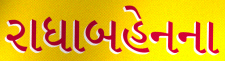
રાધાબહેનના